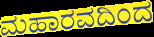
ಮಹಾರವದಿಂದ